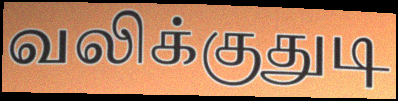
வலிக்குதுடி